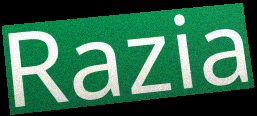
Razia